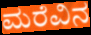
ಮರೆವಿನ